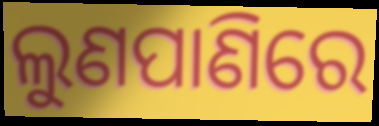
ଲୁଣପାଣିରେ